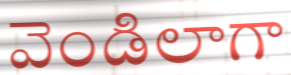
వెండిలాగా